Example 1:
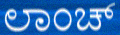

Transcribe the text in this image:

ಲಾಂಚ್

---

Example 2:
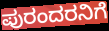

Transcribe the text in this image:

ಪುರಂದರನಿಗೆ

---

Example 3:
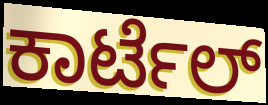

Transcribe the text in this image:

ಕಾರ್ಟೆಲ್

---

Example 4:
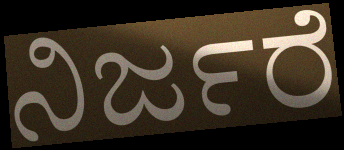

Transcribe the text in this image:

ನಿರ್ಜರೆ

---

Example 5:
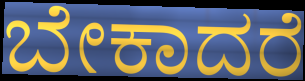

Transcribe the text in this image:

ಬೇಕಾದರೆ